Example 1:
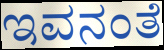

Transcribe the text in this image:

ಇವನಂತೆ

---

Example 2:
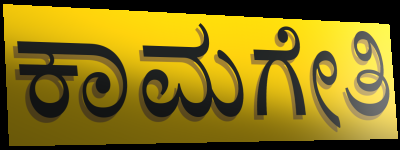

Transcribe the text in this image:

ಕಾಮಗೇತಿ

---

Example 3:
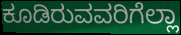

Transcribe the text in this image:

ಕೂಡಿರುವವರಿಗೆಲ್ಲಾ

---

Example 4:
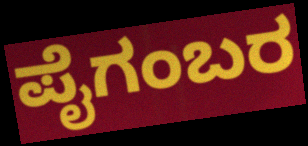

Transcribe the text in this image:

ಪೈಗಂಬರ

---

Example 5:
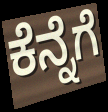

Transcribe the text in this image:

ಕೆನ್ನೆಗೆ